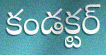
కండక్టర్